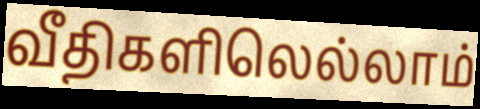
வீதிகளிலெல்லாம்